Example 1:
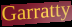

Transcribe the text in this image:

Garratty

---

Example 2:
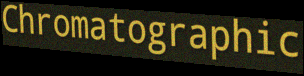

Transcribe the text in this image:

Chromatographic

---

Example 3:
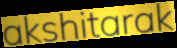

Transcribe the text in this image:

akshitarak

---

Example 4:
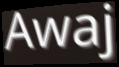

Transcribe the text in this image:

Awaj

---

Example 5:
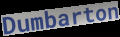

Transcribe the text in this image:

Dumbarton